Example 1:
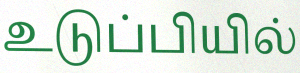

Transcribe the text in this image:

உடுப்பியில்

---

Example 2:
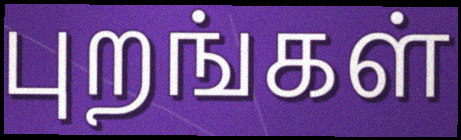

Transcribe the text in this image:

புறங்கள்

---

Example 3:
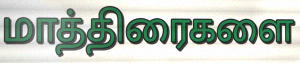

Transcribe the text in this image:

மாத்திரைகளை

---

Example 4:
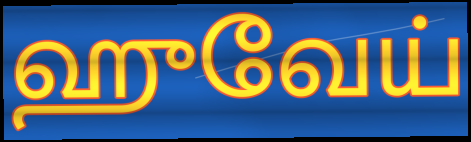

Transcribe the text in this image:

ஹுவேய்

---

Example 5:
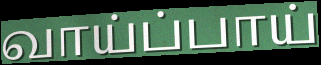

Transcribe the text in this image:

வாய்ப்பாய்